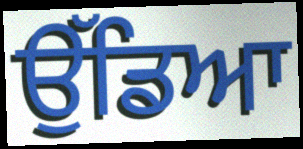
ਉੱਡਿਆ